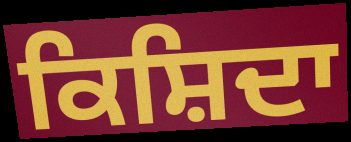
ਕਿਸ਼ਿਦਾ